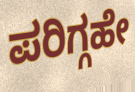
ಪರಿಗ್ಗಹೇ